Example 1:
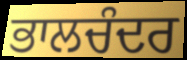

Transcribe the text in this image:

ਭਾਲਚੰਦਰ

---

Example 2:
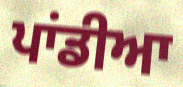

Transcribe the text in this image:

ਪਾਂਡੀਆ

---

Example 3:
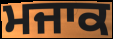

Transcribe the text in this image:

ਮਜਾਕ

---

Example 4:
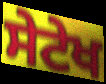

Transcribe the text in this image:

ਸੇਟੇਖ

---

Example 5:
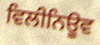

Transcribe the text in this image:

ਵਿਲੀਨਿਊਵ